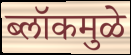
ब्लॉकमुळे